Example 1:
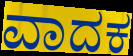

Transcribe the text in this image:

ವಾದಕ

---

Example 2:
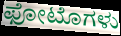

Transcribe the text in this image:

ಫೋಟೊಗಳು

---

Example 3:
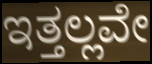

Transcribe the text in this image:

ಇತ್ತಲ್ಲವೇ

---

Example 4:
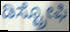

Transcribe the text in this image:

ಡಿಸ್ಟ್ರೋಫಿ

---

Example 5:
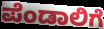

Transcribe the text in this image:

ಪೆಂಡಾಲಿಗೆ